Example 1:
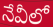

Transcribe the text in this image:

నేవీలో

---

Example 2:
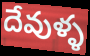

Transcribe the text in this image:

దేవుళ్ళ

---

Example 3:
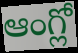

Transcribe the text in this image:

ఆంగ్లో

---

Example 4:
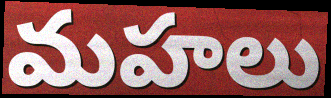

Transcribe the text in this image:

మహలు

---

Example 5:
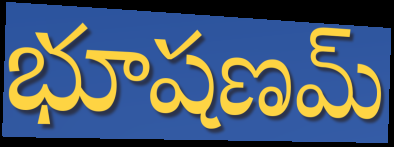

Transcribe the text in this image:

భూషణమ్